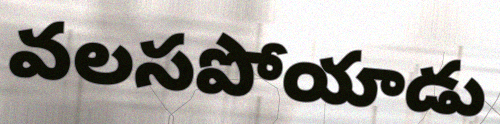
వలసపోయాడు